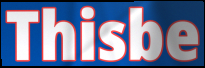
Thisbe